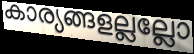
കാര്യങ്ങളല്ലല്ലോ